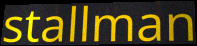
stallman